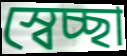
স্বেচ্ছা